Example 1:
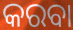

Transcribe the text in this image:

କରବା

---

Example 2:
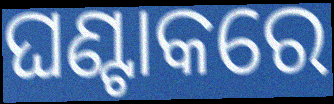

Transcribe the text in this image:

ଘଣ୍ଟାକରେ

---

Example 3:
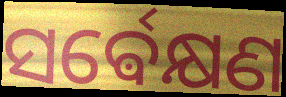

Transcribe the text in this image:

ସର୍ଵେକ୍ଷଣ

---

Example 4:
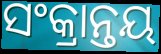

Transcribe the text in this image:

ସଂକ୍ରାନ୍ତୟ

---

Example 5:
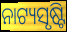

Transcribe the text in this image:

ନାଟ୍ୟସୃଷ୍ଟି